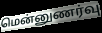
மென்னுணர்வு